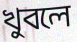
খুবলে